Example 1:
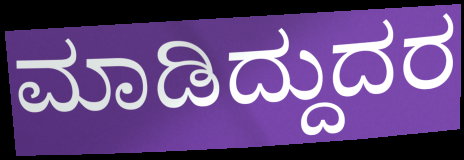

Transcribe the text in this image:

ಮಾಡಿದ್ದುದರ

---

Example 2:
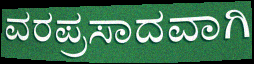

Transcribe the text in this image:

ವರಪ್ರಸಾದವಾಗಿ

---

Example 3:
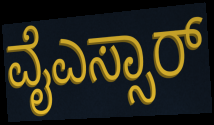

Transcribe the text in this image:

ವೈಎಸ್ಸಾರ್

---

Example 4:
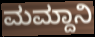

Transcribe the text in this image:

ಮಮ್ದಾನಿ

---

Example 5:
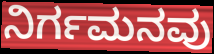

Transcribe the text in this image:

ನಿರ್ಗಮನವು